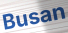
Busan